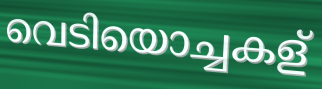
വെടിയൊച്ചകള്